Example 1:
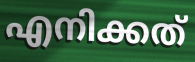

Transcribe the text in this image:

എനിക്കത്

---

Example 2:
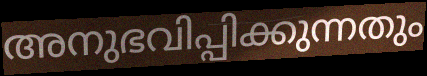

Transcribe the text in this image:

അനുഭവിപ്പിക്കുന്നതും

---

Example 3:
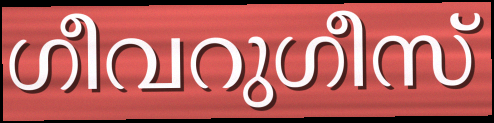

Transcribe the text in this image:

ഗീവറുഗീസ്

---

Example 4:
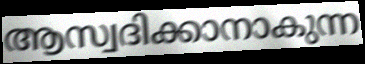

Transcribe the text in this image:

ആസ്വദിക്കാനാകുന്ന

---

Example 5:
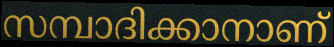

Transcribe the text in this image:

സമ്പാദിക്കാനാണ്